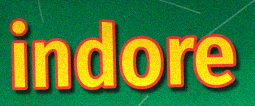
indore